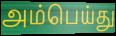
அம்பெய்து